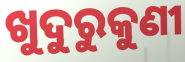
ଖୁଦୁରୁକୁଣୀ